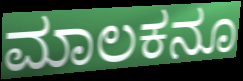
ಮಾಲಕನೂ